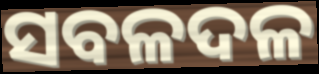
ସବଳଦଳ